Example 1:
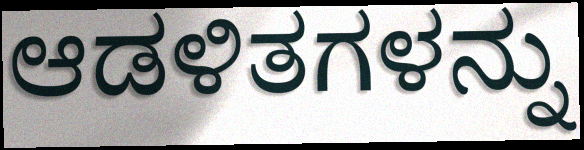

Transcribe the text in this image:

ಆಡಳಿತಗಳನ್ನು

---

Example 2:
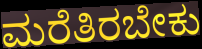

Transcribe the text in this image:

ಮರೆತಿರಬೇಕು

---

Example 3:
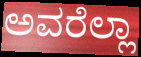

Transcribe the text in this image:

ಅವರೆಲ್ಲಾ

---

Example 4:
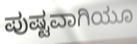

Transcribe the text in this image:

ಪುಷ್ಟವಾಗಿಯೂ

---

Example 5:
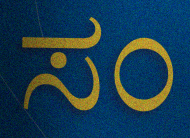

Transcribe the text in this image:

ಸಂ